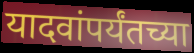
यादवांपर्यंतच्या